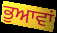
ਭੁਆਵਾਂ